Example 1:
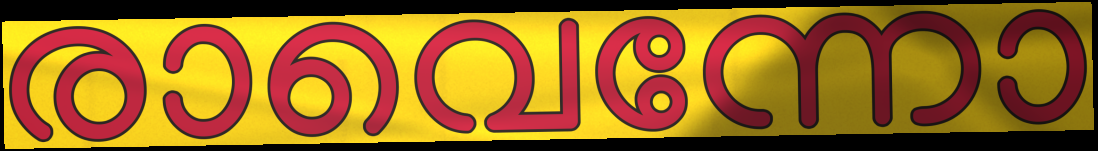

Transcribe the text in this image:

രാവെന്നോ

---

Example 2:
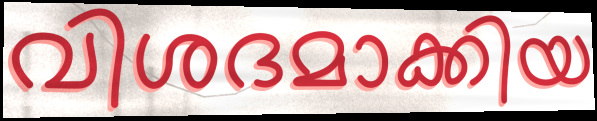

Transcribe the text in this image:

വിശദമാക്കിയ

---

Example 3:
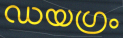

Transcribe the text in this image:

ഡയഗ്രം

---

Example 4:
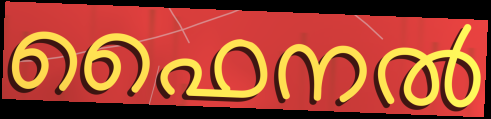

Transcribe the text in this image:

ഫൈനൽ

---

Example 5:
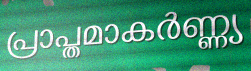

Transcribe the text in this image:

പ്രാപ്തമാകർണ്ണ്യ